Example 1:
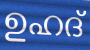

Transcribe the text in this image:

ഉഹദ്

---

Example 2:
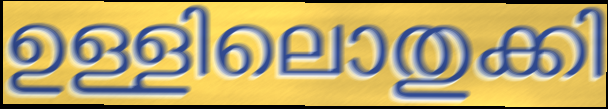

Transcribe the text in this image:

ഉള്ളിലൊതുക്കി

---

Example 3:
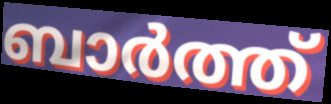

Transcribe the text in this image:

ബാർത്ത്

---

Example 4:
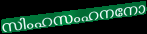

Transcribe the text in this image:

സിംഹസംഹനനോ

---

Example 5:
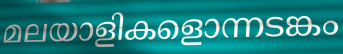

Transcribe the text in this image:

മലയാളികളൊന്നടങ്കം